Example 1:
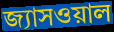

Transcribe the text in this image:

জ্যাসওয়াল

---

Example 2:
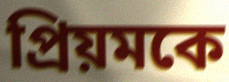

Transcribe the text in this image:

প্রিয়মকে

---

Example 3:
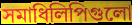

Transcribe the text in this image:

সমাধিলিপিগুলো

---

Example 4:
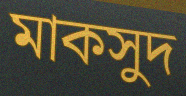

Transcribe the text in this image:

মাকসুদ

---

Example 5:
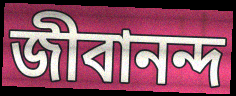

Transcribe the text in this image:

জীবানন্দ